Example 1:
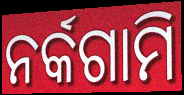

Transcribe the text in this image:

ନର୍କଗାମି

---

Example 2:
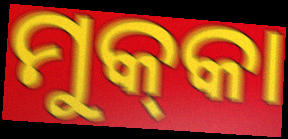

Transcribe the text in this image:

ମୁକ୍‌କା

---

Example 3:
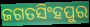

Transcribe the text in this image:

ଜଗତସିଂହପୁର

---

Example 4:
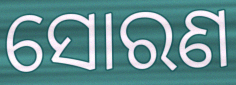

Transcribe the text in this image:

ସୋରଣ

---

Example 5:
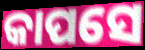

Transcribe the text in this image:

କାପସେ